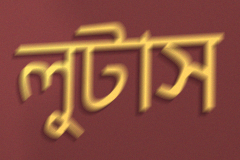
লুটাস